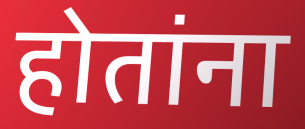
होतांना